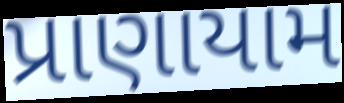
પ્રાણાયામ